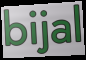
bijal